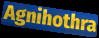
Agnihothra